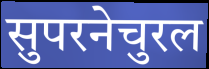
सुपरनेचुरल